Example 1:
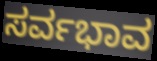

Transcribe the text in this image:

ಸರ್ವಭಾವ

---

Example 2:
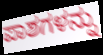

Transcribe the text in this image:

ಪಾಶಗಳನ್ನು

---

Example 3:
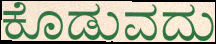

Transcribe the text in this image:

ಕೊಡುವದು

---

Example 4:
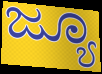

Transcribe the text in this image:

ಜ್ಯೂ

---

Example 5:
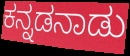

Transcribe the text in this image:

ಕನ್ನಡನಾಡು